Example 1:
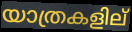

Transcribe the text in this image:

യാത്രകളില്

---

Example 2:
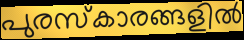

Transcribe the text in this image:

പുരസ്കാരങ്ങളിൽ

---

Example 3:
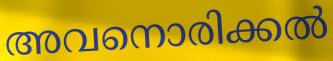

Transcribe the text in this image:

അവനൊരിക്കൽ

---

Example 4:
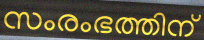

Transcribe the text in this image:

സംരംഭത്തിന്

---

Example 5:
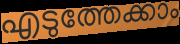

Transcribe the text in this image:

എടുത്തേക്കാം